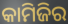
କାମିଜିର